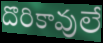
దొరికావులే